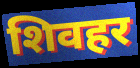
शिवहर